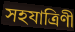
সহযাত্রিণী